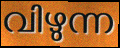
വിഴുന്ന